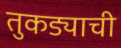
तुकड्याची